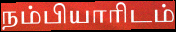
நம்பியாரிடம்